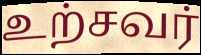
உற்சவர்